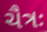
ચૈત્રઃ